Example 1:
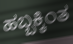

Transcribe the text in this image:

ಹಬ್ಬಕ್ಕಿಂತ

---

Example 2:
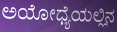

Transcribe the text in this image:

ಅಯೋಧ್ಯೆಯಲ್ಲಿನ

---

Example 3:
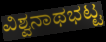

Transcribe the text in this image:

ವಿಶ್ವನಾಥಭಟ್ಟ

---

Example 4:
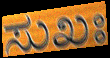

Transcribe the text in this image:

ಸುಖಃ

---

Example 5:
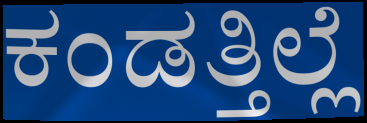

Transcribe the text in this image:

ಕಂಡತ್ತಿಲ್ಲೆ